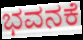
ಭವನಕೆ